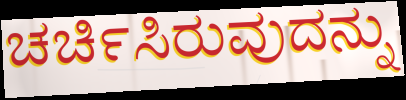
ಚರ್ಚಿಸಿರುವುದನ್ನು